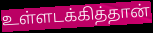
உள்ளடக்கித்தான்